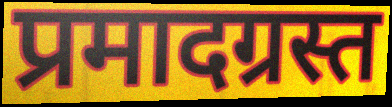
प्रमादग्रस्त